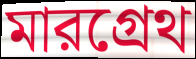
মারগ্রেথ